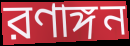
রণাঙ্গন